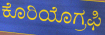
ಕೊರಿಯೊಗ್ರಫಿ